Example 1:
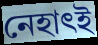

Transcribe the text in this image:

নেহাৎই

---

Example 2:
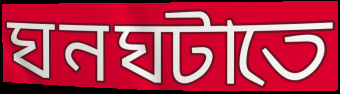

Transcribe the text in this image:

ঘনঘটাতে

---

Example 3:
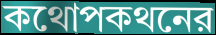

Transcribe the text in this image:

কথোপকথনের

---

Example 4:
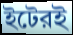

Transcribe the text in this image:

ইটেরই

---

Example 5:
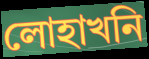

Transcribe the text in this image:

লোহাখনি